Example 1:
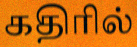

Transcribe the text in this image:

கதிரில்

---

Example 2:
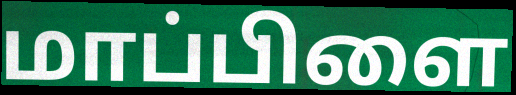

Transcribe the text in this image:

மாப்பிளை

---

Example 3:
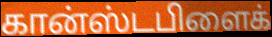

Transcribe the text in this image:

கான்ஸ்டபிளைக்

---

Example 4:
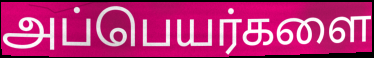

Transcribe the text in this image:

அப்பெயர்களை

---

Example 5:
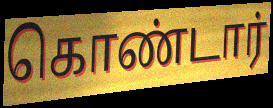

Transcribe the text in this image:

கொண்டார்